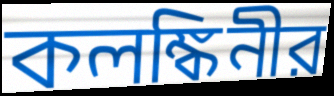
কলঙ্কিনীর